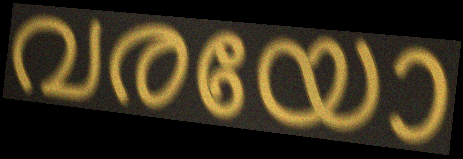
വരയോ